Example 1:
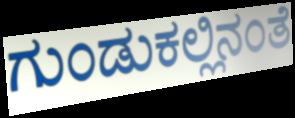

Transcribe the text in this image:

ಗುಂಡುಕಲ್ಲಿನಂತೆ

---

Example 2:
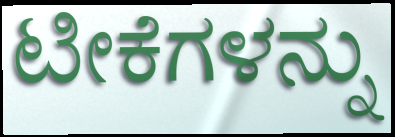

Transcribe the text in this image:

ಟೀಕೆಗಳನ್ನು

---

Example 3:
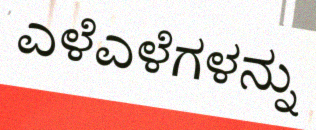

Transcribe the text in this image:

ಎಳೆಎಳೆಗಳನ್ನು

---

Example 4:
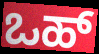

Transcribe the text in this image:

ಒಹ್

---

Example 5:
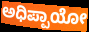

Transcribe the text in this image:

ಅಧಿಪ್ಪಾಯೋ